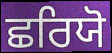
ਛਰਿਯੋ